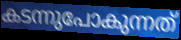
കടന്നുപോകുന്നത്